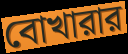
বোখারার